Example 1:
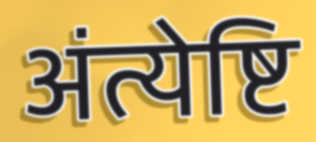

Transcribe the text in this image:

अंत्येष्टि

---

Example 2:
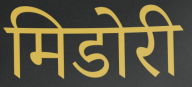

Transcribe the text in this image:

मिडोरी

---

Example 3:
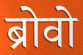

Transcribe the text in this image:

ब्रोवो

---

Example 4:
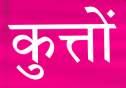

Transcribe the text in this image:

कुत्तों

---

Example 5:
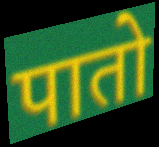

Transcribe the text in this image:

पातो